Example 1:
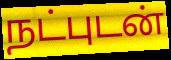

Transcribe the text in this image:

நட்புடன்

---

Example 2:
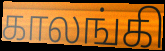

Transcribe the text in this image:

காலங்கி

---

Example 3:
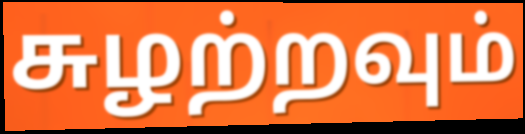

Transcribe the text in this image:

சுழற்றவும்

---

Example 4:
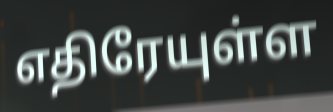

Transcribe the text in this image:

எதிரேயுள்ள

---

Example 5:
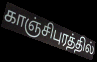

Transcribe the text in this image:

காஞ்சிபுரத்தில்